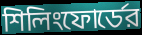
শিলিংফোর্ডের